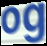
og